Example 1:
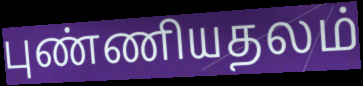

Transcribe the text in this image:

புண்ணியதலம்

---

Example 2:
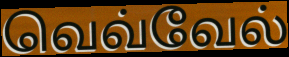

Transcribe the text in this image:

வெவ்வேல்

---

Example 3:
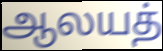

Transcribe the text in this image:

ஆலயத்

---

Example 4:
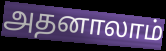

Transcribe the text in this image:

அதனாலாம்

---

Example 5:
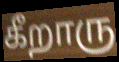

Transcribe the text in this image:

கீறாரு